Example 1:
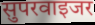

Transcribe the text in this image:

सुपरवाइजर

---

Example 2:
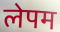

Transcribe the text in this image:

लेपम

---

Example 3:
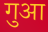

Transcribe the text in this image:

गुआ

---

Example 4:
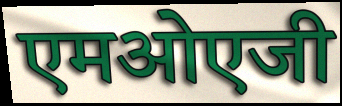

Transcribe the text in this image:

एमओएजी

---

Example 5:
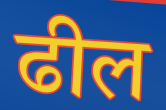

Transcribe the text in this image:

ढील